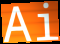
Ai